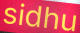
sidhu